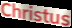
Christus